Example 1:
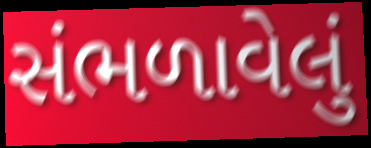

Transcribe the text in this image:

સંભળાવેલું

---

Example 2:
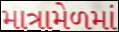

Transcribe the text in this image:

માત્રામેળમાં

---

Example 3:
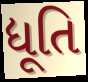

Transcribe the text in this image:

દ્યૂતિ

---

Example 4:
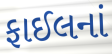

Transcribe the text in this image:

ફાઈલનાં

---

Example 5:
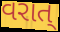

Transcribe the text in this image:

વરાત્